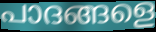
പാദങ്ങളെ